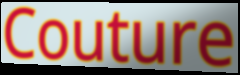
Couture